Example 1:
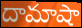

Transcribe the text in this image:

దామాషా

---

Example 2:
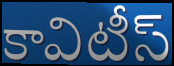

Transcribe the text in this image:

కావిటీస్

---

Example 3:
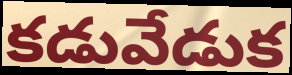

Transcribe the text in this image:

కడువేడుక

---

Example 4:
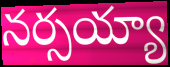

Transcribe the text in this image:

నర్సయ్యా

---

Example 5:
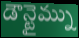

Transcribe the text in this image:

డౌన్టైమ్ను